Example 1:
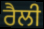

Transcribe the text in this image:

ਰੈਲੀ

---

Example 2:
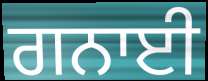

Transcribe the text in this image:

ਗਨਾਈ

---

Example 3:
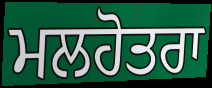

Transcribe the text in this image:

ਮਲਹੋਤਰਾ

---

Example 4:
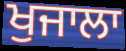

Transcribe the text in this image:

ਖੁਜਾਲਾ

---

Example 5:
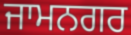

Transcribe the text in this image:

ਜਾਮਨਗਰ